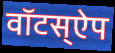
वॉटस्ऐप